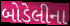
બોડેલીના